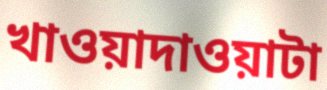
খাওয়াদাওয়াটা